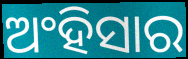
ଅଂହିସାର